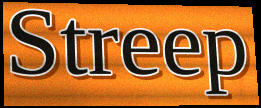
Streep